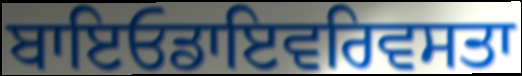
ਬਾਇਓਡਾਇਵਰਿਵਸਤਾ